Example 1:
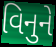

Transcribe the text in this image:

વિનુને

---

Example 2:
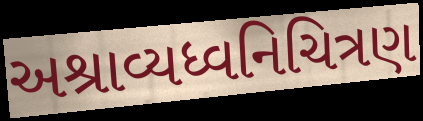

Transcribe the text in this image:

અશ્રાવ્યધ્વનિચિત્રણ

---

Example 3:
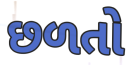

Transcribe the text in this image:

છળતો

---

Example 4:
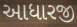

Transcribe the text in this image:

આધારજી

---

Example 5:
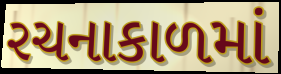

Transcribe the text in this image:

રચનાકાળમાં